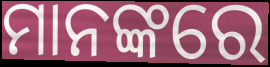
ମାନଙ୍କରେ